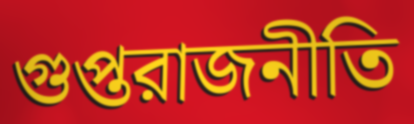
গুপ্তরাজনীতি